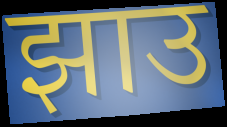
झाउ